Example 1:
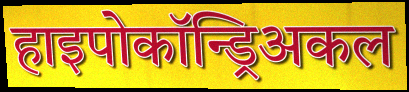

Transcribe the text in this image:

हाइपोकॉन्ड्रिअकल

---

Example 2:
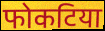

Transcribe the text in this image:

फोकटिया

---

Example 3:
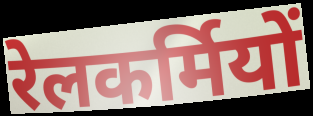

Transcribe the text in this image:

रेलकर्मियों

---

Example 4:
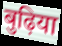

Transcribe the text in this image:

बुढ़िया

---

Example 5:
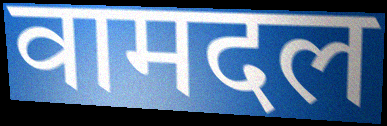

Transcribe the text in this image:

वामदल